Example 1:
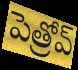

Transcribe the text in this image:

పెత్రోవ్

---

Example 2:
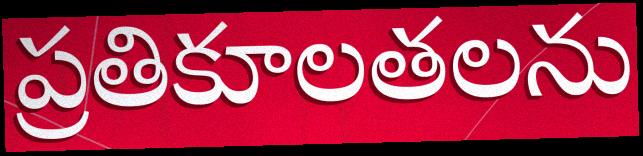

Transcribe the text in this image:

ప్రతికూలతలను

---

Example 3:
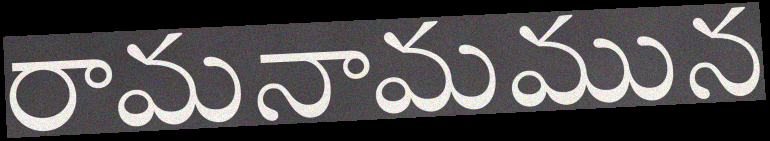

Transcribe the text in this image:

రామనామమున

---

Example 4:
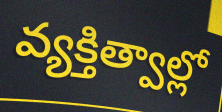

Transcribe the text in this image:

వ్యక్తిత్వాల్లో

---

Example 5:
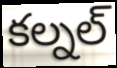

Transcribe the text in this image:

కల్నల్